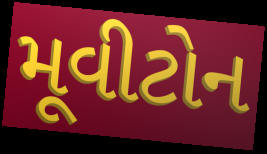
મૂવીટોન